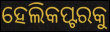
ହେଲିକପ୍ଟରକୁ